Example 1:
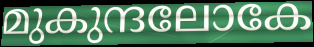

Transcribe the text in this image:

മുകുന്ദലോകേ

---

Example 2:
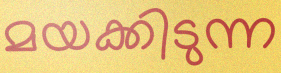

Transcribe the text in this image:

മയക്കിടുന്ന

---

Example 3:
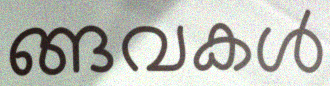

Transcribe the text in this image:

ങ്ങവകൾ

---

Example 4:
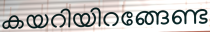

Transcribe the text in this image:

കയറിയിറങ്ങേണ്ട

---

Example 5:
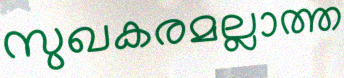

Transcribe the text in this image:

സുഖകരമല്ലാത്ത